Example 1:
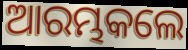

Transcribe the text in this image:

ଆରମ୍ଭକଲେ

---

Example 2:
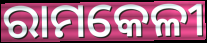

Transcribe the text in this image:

ରାମକେଳୀ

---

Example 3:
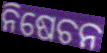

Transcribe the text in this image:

ନିଷେଚନ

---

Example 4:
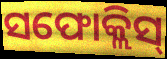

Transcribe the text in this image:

ସଫୋକ୍ଲିସ୍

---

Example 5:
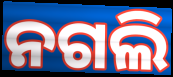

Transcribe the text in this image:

ନଗଲି